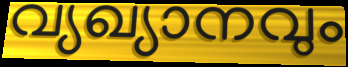
വ്യഖ്യാനവും